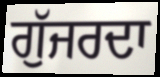
ਗੁੱਜਰਦਾ